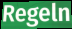
Regeln